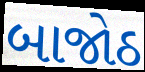
બાજોઠ